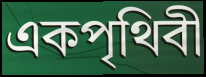
একপৃথিবী